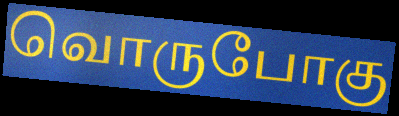
வொருபோகு